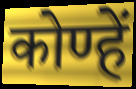
कोण्हें